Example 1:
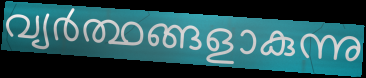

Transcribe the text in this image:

വ്യർത്ഥങ്ങളാകുന്നു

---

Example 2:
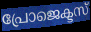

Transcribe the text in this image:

പ്രോജെക്ടസ്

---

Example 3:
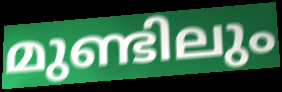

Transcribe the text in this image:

മുണ്ടിലും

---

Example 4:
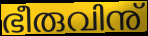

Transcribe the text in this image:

ഭീരുവിനു്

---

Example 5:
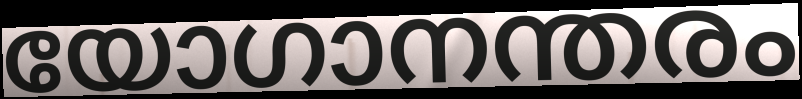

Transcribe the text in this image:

യോഗാനന്തരം